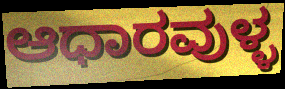
ಆಧಾರವುಳ್ಳ